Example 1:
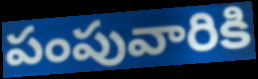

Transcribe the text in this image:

పంపువారికి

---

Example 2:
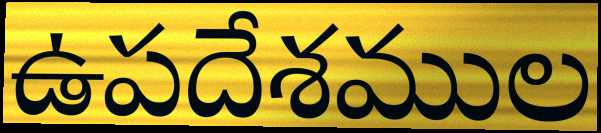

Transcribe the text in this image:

ఉపదేశముల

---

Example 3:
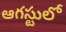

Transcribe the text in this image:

ఆగస్టులో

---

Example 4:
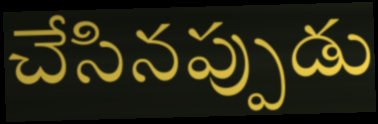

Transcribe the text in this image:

చేసినప్పుడు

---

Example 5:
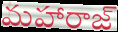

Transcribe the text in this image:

మహారాజ్